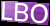
LBO